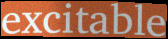
excitable